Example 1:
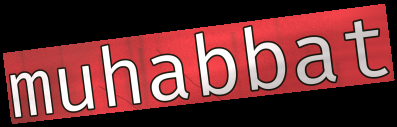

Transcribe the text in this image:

muhabbat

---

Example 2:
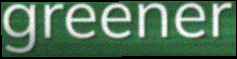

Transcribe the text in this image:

greener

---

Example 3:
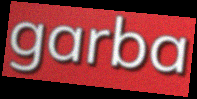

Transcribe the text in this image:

garba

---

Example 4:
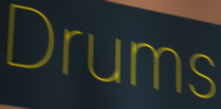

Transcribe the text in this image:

Drums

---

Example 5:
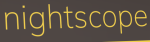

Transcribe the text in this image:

nightscope